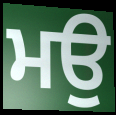
ਮਉ